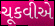
ચૂકવીએ